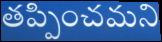
తప్పించమని